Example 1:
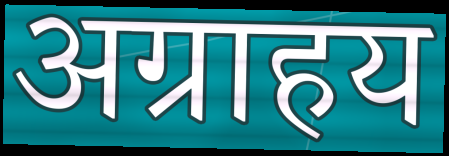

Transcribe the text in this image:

अग्राहय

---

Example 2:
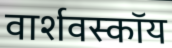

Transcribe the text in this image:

वार्शवस्कॉय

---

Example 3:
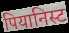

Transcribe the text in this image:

पियानिस्ट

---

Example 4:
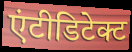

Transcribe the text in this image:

एंटीडिटेक्ट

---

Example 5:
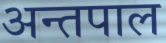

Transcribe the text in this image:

अन्तपाल